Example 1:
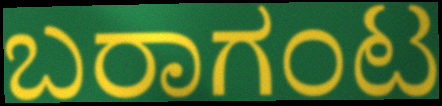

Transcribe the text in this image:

ಬರಾಗಂಟ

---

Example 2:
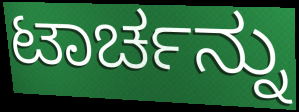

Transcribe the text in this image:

ಟಾರ್ಚನ್ನು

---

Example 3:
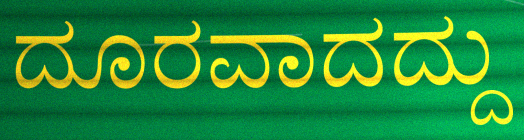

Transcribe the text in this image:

ದೂರವಾದದ್ದು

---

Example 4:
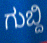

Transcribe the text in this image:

ಗುಬ್ದಿ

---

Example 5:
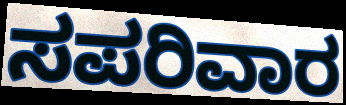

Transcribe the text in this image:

ಸಪರಿವಾರ